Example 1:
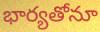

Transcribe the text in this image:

భార్యతోనూ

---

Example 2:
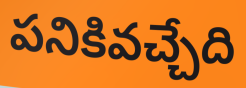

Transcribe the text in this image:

పనికివచ్చేది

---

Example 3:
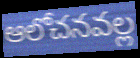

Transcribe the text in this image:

ఆలోచనవల్ల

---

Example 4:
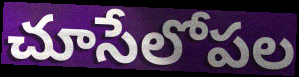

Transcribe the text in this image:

చూసేలోపల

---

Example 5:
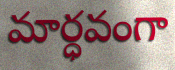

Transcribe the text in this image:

మార్ధవంగా